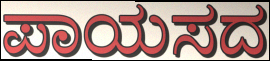
ಪಾಯಸದ